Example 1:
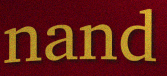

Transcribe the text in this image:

nand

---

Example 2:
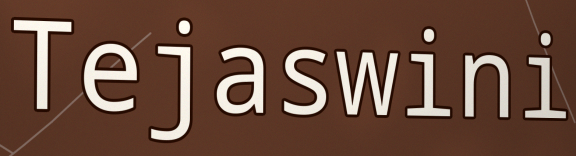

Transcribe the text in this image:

Tejaswini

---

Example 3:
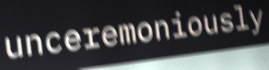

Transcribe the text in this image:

unceremoniously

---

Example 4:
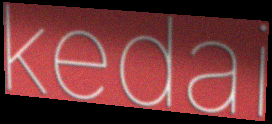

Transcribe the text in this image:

kedai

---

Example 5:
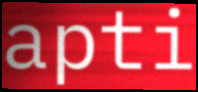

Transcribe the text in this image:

apti